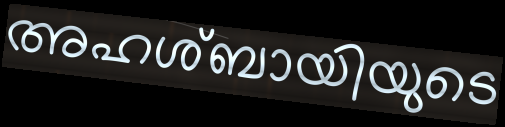
അഹശ്ബായിയുടെ